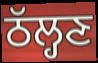
ਠੱਲ੍ਹਣ